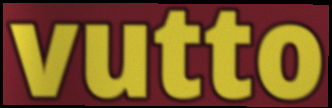
vutto